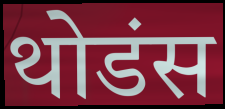
थोडंस